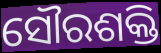
ସୌରଶକ୍ତି